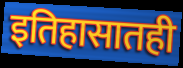
इतिहासातही